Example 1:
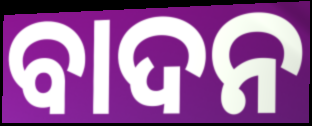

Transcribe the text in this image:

ବାଦନ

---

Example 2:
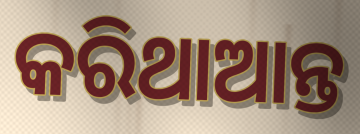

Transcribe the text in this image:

କରିଥାଆନ୍ତ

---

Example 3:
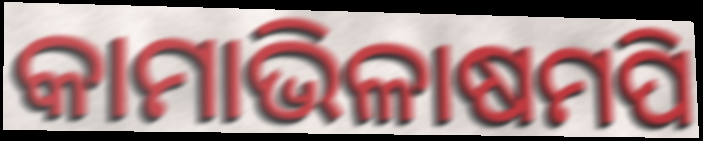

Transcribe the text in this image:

କାମାଭିଳାଷମପି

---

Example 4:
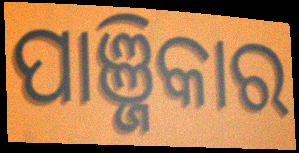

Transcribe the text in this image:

ପାଞ୍ଜିକାର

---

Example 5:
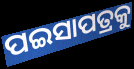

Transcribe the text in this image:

ପଇସାପତ୍ରକୁ